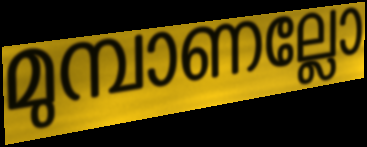
മുമ്പാണല്ലോ